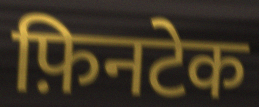
फ़िनटेक